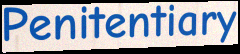
Penitentiary